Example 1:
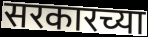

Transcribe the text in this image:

सरकारच्या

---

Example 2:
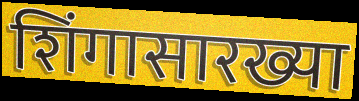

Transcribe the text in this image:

शिंगासारख्या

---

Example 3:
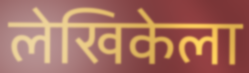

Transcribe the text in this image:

लेखिकेला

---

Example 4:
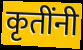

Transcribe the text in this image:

कृतींनी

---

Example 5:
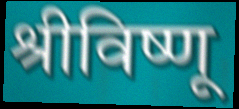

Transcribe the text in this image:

श्रीविष्णू